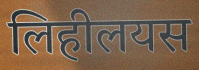
लिहीलयस